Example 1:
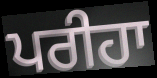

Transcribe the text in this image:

ਪਰੀਹਾ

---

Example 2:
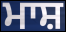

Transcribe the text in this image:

ਮਾਸ਼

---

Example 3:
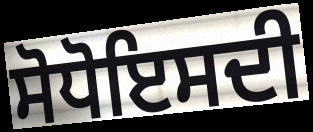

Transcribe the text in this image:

ਸੋਧੋਇਸਦੀ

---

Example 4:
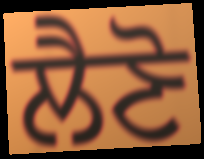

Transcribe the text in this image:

ਲੈਣੋ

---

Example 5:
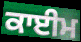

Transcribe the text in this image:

ਕਾਈਮ